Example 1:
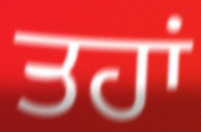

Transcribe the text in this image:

ਤਹਾਂ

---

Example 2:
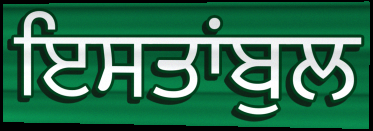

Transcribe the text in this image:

ਇਸਤਾਂਬੁਲ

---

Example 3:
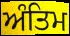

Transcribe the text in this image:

ਅੰਤਿਮ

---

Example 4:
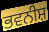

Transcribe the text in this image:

ਭਵਨੀਸ਼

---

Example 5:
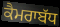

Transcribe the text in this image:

ਕੈਮਰਾਬੱਧ